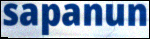
sapanun